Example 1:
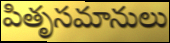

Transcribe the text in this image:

పితృసమానులు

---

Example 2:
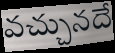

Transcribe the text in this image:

వచ్చునదే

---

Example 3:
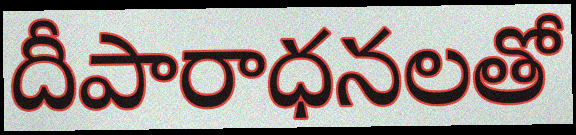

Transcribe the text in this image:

దీపారాధనలతో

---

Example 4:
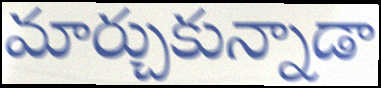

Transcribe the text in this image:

మార్చుకున్నాడా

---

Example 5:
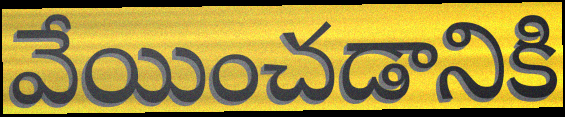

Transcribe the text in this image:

వేయించడానికి